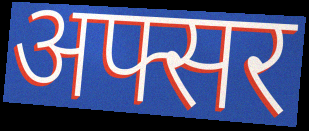
अफ्सर